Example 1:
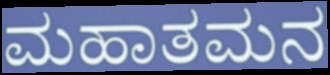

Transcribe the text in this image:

ಮಹಾತಮನ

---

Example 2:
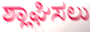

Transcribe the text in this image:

ಶ್ಲಾಘಿಸಲು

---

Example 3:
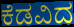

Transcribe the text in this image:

ಕೆಡವಿದ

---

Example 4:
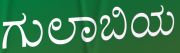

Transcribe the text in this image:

ಗುಲಾಬಿಯ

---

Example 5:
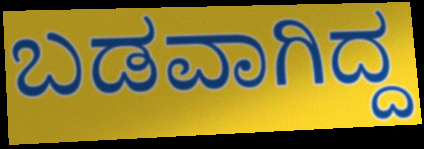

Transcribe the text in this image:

ಬಡವಾಗಿದ್ದ